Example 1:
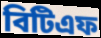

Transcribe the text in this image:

বিটিএফ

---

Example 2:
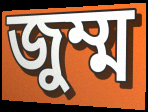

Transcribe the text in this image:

জুম্ম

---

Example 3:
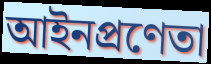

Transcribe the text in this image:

আইনপ্রণেতা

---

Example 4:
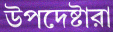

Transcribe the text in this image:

উপদেষ্টারা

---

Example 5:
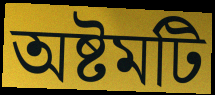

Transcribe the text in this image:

অষ্টমটি